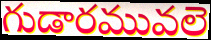
గుడారమువలె